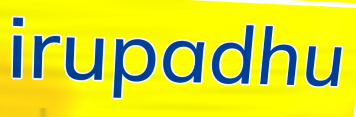
irupadhu